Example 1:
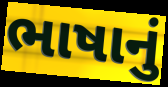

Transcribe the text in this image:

ભાષાનું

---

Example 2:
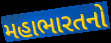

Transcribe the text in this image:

મહાભારતનો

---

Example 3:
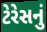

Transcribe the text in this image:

ટેરેસનું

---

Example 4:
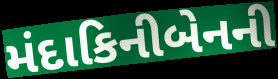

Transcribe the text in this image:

મંદાકિનીબેનની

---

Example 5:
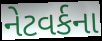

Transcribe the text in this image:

નેટવર્કના